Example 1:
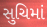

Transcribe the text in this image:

સુચિમાં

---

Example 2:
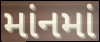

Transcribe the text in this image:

માંનમાં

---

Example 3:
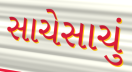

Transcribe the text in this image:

સાચેસાચું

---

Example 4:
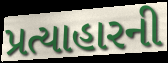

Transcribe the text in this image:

પ્રત્યાહારની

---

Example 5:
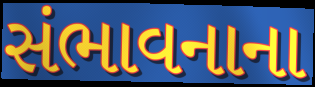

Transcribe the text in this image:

સંભાવનાના